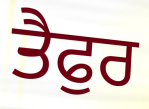
ਤੈਫੁਰ